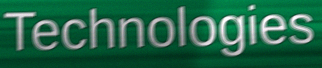
Technologies